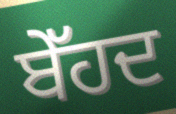
ਬੇੱਹਦ